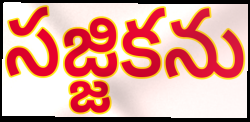
సజ్జికను